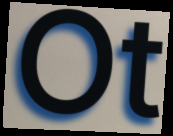
Ot